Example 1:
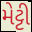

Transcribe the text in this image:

મેટ્ટી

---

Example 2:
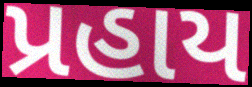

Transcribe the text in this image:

પ્રહાય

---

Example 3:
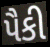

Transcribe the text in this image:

પૈકી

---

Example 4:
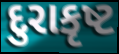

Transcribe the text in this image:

દુરાકૃષ્ટ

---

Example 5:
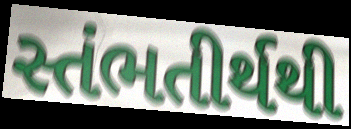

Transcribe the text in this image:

સ્તંભતીર્થથી